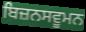
ਬਿਜ਼ਨਸਵੂਮਨ